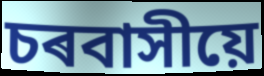
চৰবাসীয়ে